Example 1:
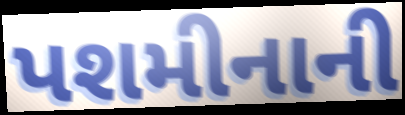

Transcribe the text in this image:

પશમીનાની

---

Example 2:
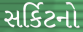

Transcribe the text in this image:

સર્કિટનો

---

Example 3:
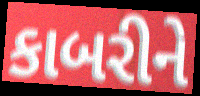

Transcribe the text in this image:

કાબરીને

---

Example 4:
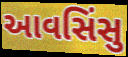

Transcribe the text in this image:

આવસિંસુ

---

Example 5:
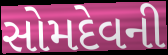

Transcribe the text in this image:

સોમદેવની